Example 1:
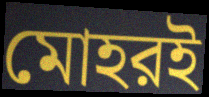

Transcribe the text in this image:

মোহরই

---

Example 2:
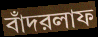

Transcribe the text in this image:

বাঁদরলাফ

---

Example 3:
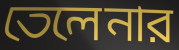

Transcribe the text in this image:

তেলেনার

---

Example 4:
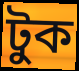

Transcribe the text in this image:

টুক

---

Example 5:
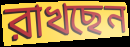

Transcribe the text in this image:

রাখছেন